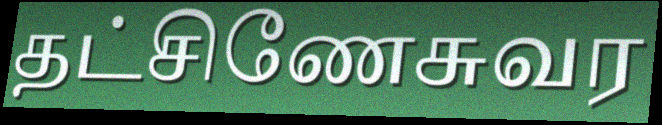
தட்சிணேசுவர